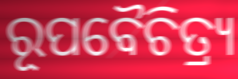
ରୂପବୈଚିତ୍ର୍ୟ